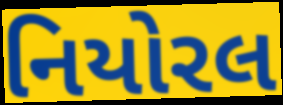
નિયોરલ